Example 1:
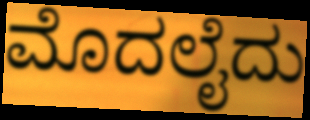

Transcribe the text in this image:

ಮೊದಲೈದು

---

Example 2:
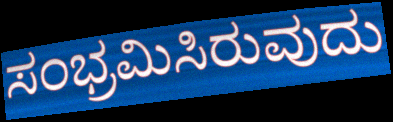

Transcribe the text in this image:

ಸಂಭ್ರಮಿಸಿರುವುದು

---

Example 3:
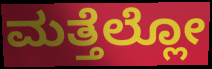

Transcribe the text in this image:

ಮತ್ತೆಲ್ಲೋ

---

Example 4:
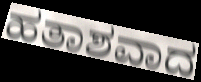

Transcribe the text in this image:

ಹತಾಶವಾದ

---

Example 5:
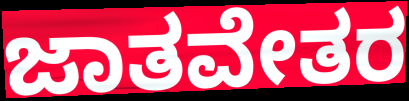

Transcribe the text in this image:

ಜಾತವೇತರ